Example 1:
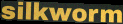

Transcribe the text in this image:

silkworm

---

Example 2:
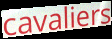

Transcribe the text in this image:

cavaliers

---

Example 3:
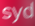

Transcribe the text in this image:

syd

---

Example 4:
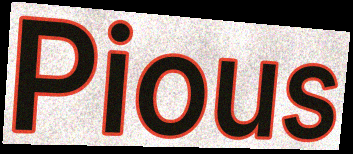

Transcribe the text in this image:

Pious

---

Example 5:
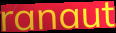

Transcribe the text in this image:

ranaut